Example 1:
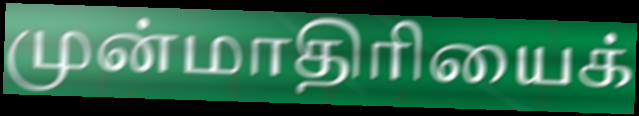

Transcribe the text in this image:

முன்மாதிரியைக்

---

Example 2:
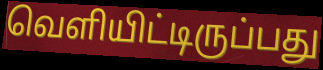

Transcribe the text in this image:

வெளியிட்டிருப்பது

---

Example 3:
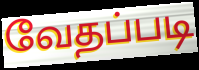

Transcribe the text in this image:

வேதப்படி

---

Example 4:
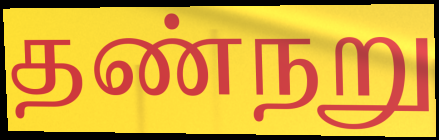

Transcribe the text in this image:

தண்நறு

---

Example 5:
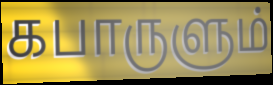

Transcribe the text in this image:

கபாருளும்